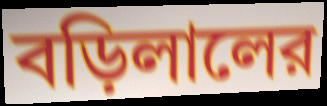
বড়িলালের